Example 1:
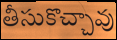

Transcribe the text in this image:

తీసుకొచ్చావు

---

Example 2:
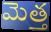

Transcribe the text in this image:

మెత్త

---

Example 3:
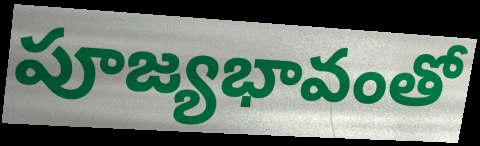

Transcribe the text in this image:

పూజ్యభావంతో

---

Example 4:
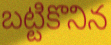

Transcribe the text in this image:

బట్టికొనిన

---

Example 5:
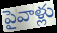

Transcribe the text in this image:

పైవాళ్లు